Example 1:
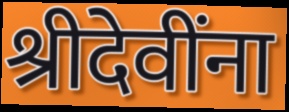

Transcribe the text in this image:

श्रीदेवींना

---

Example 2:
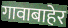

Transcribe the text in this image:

गावाबाहेर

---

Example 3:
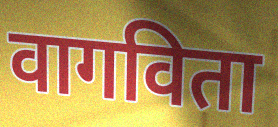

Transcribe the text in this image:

वागविता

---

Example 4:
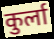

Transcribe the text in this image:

कुर्ला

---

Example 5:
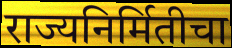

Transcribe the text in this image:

राज्यनिर्मितीचा